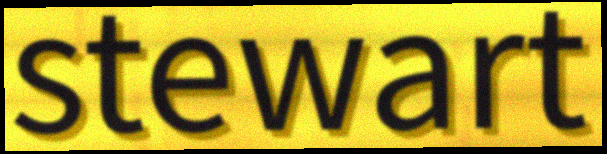
stewart